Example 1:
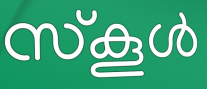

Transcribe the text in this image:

സ്കൂൾ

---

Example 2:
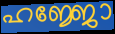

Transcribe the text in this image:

ഹജ്ജോ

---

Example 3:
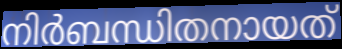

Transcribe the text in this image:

നിർബന്ധിതനായത്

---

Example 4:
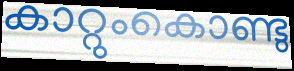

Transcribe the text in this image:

കാറ്റുംകൊണ്ടു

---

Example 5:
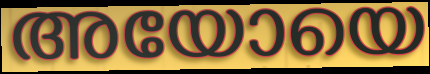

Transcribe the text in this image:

അയോയെ